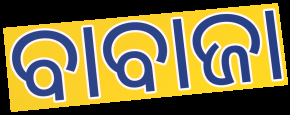
ବାବାଜା